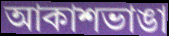
আকাশভাঙা